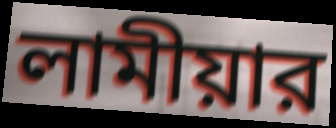
লামীয়ার